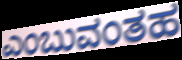
ಎಂಬುವಂತಹ